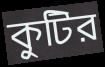
কুটির